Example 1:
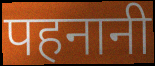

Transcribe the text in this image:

पहनानी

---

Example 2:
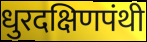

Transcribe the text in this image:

धुरदक्षिणपंथी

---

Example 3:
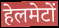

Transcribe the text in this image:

हेलमेटों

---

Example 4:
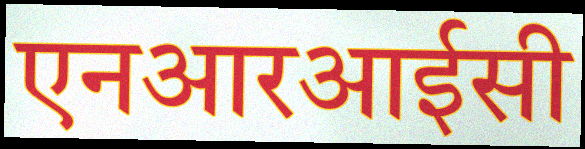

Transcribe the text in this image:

एनआरआईसी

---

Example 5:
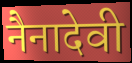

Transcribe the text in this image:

नैनादेवी